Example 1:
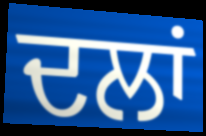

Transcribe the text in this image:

ਦਲਾਂ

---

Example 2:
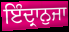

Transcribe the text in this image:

ਇੰਦ੍ਰਾਨੁਜਾ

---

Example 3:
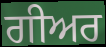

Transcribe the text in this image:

ਗੀਅਰ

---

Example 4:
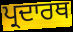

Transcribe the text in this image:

ਪ੍ਰਦਾਰਥ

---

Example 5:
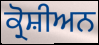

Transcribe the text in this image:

ਕ੍ਰੋਸ਼ੀਅਨ